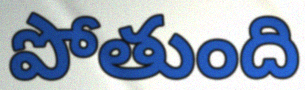
పోతుంది